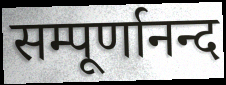
सम्पूर्णानन्द